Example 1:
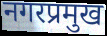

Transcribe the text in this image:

नगरप्रमुख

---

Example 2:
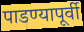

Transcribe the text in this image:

पाडण्यापूर्वी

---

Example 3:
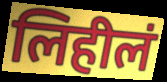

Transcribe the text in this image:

लिहीलं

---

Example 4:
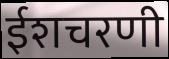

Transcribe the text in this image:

ईशचरणी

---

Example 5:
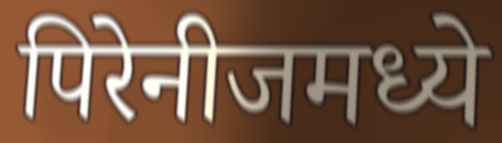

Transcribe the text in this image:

पिरेनीजमध्ये